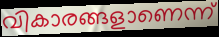
വികാരങ്ങളാണെന്ന്